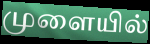
முளையில்